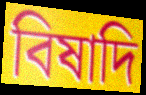
বিষাদি